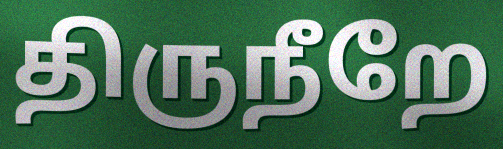
திருநீறே